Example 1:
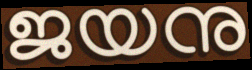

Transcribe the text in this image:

ജയനു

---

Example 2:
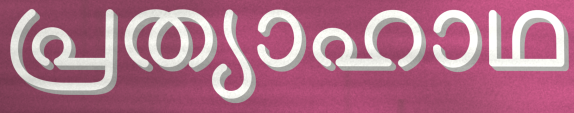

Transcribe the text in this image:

പ്രത്യാഹാഥ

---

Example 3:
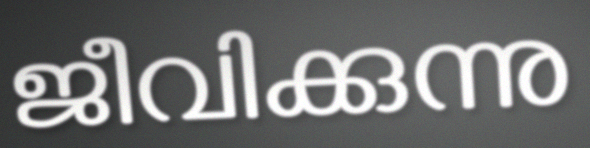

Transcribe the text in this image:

ജീവിക്കുന്നു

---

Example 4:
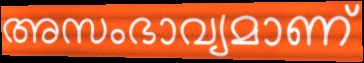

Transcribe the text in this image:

അസംഭാവ്യമാണ്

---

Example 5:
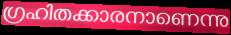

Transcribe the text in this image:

ഗ്രഹിതക്കാരനാണെന്നു